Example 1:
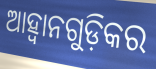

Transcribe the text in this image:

ଆହ୍ଵାନଗୁଡ଼ିକର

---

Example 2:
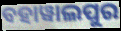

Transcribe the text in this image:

ବହାୱାଲପୁର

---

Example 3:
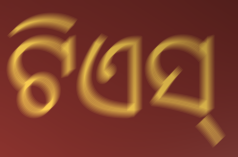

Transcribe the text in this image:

ଟିଏସ୍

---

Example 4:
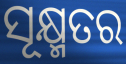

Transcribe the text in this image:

ସୂକ୍ଷ୍ମତର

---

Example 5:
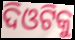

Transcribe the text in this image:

ଦିଓଟିକୁ